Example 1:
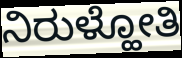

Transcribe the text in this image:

ನಿರುಳ್ಹೋತಿ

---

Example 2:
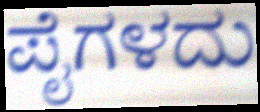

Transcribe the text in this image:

ಪೈಗಳದು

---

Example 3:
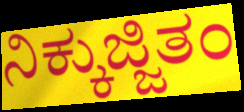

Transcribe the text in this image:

ನಿಕ್ಕುಜ್ಜಿತಂ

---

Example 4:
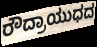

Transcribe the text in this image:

ರೌದ್ರಾಯುಧದ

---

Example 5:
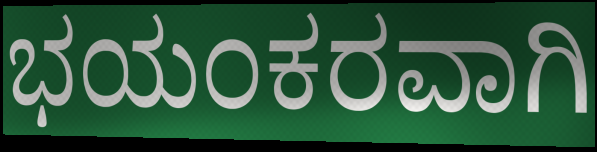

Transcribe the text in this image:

ಭಯಂಕರವಾಗಿ